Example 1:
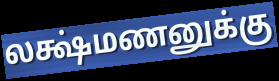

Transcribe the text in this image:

லக்ஷ்மணனுக்கு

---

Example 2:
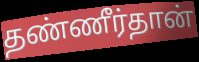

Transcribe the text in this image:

தண்ணீர்தான்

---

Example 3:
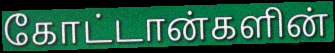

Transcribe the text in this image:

கோட்டான்களின்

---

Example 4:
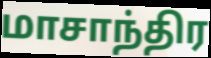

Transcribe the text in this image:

மாசாந்திர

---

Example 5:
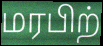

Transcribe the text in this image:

மரபிற்